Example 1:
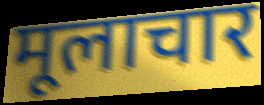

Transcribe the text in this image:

मूलाचार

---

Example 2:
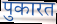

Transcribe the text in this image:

पुकारत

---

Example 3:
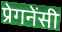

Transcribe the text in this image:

प्रेगनेंसी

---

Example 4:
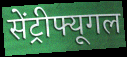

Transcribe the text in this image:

सेंट्रीफ्यूगल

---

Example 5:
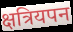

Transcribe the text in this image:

क्षत्रियपन